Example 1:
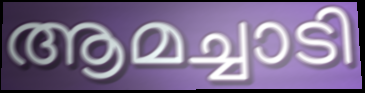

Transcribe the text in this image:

ആമച്ചാടി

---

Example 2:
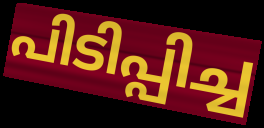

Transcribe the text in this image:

പിടിപ്പിച്ച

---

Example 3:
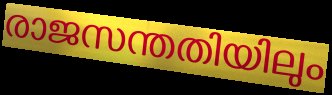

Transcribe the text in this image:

രാജസന്തതിയിലും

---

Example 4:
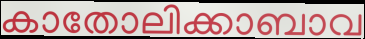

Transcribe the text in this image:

കാതോലിക്കാബാവ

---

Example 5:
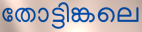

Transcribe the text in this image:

തോട്ടിങ്കലെ